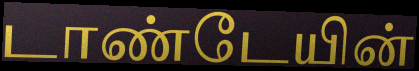
டாண்டேயின்